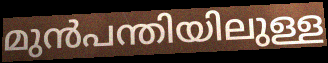
മുൻപന്തിയിലുള്ള